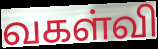
வகள்வி